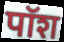
पॉश